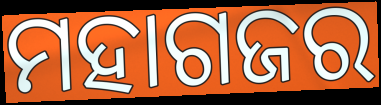
ମହାଗଜର